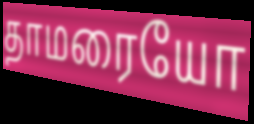
தாமரையோ